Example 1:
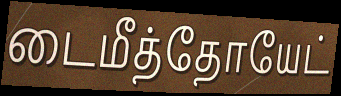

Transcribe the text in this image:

டைமீத்தோயேட்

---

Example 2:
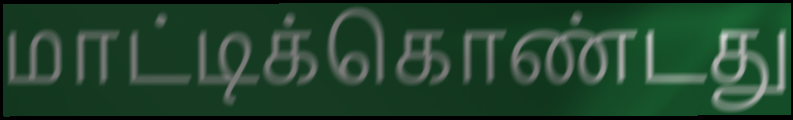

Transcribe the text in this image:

மாட்டிக்கொண்டது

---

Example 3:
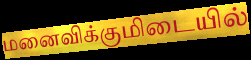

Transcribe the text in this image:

மனைவிக்குமிடையில்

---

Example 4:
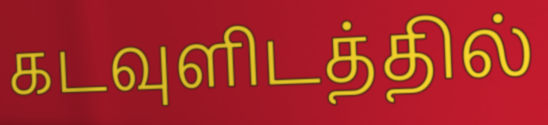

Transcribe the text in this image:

கடவுளிடத்தில்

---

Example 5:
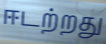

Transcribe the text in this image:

ஈடற்றது